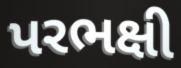
પરભક્ષી